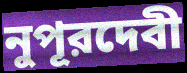
নুপূরদেবী